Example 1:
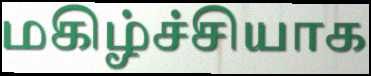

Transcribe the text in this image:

மகிழ்ச்சியாக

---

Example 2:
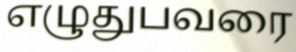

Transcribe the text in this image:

எழுதுபவரை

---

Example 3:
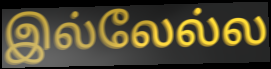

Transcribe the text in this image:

இல்லேல்ல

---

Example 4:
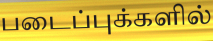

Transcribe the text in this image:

படைப்புக்களில்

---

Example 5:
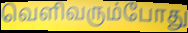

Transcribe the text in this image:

வெளிவரும்போது